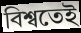
বিশ্বতেই